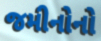
જમીનોનો